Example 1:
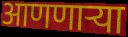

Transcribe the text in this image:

आणणाऱ्या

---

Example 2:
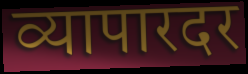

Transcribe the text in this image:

व्यापारदर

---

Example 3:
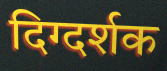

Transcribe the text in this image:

दिग्‍दर्शक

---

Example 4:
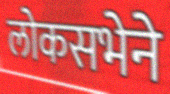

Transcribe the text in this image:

लोकसभेने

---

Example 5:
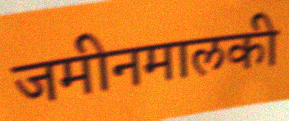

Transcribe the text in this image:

जमीनमालकी